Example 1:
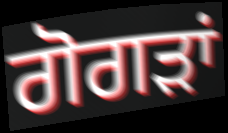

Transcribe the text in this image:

ਗੋਗੜਾਂ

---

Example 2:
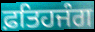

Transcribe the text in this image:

ਫ਼ਤਿਹਜੰਗ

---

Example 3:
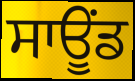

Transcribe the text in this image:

ਸਾਊਂਡ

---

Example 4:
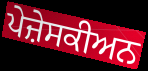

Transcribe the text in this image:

ਪੇਜ਼ੇਸਕੀਅਨ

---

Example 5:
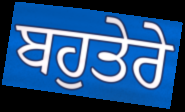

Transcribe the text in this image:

ਬਹੁਤੇਰੇ